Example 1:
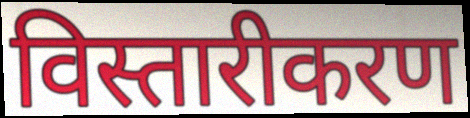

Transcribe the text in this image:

विस्तारीकरण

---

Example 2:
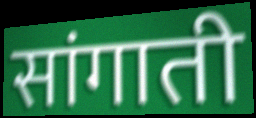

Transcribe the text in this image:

सांगाती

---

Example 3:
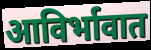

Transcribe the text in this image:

आविर्भावात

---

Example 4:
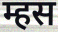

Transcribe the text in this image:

म्हस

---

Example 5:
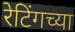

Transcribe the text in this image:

रेटिंगच्या